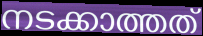
നടക്കാത്തത്